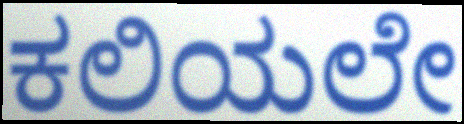
ಕಲಿಯಲೇ